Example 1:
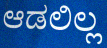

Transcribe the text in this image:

ಆಡಲಿಲ್ಲ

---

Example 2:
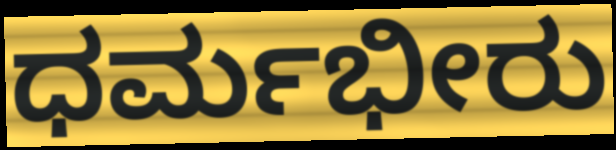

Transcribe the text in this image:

ಧರ್ಮಭೀರು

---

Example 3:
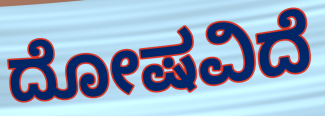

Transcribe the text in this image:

ದೋಷವಿದೆ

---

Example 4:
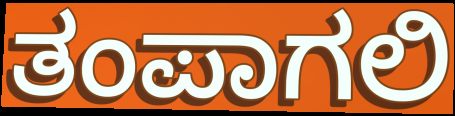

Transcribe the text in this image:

ತಂಪಾಗಲಿ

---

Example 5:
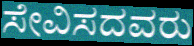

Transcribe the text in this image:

ಸೇವಿಸದವರು